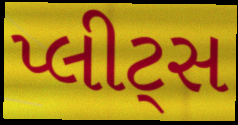
પ્લીટ્સ